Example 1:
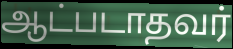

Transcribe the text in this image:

ஆட்படாதவர்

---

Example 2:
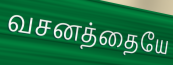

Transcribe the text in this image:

வசனத்தையே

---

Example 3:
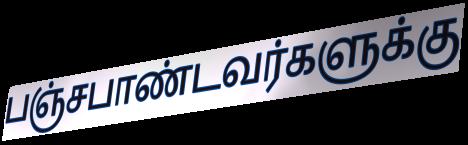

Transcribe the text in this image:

பஞ்சபாண்டவர்களுக்கு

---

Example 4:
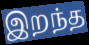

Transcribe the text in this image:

இறந்த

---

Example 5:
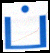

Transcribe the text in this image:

ப்